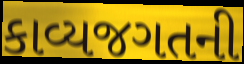
કાવ્યજગતની